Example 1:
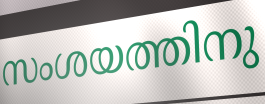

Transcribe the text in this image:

സംശയത്തിനു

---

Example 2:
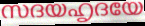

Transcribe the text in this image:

സദയഹൃദയേ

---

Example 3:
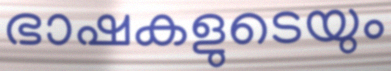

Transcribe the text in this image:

ഭാഷകളുടെയും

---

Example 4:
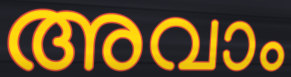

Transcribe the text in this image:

അവാം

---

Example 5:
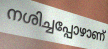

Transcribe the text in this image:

നശിച്ചപ്പോഴാണ്